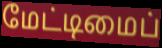
மேட்டிமைப்